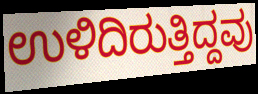
ಉಳಿದಿರುತ್ತಿದ್ದವು